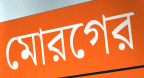
মোরগের